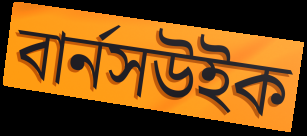
বার্নসউইক